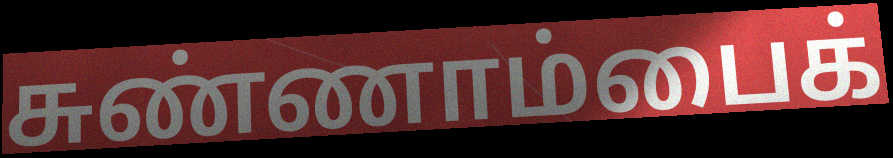
சுண்ணாம்பைக்